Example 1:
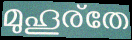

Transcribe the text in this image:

മുഹൂര്തേ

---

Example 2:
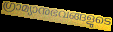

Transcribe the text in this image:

ഗ്രാമ്യാനുഭവങ്ങളുടെ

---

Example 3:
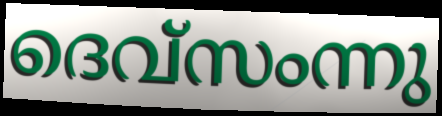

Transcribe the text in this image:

ദെവ്സംന്നു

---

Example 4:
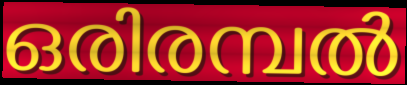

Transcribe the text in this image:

ഒരിരമ്പൽ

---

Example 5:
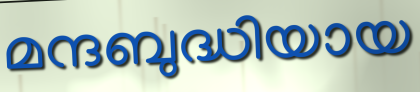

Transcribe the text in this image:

മന്ദബുദ്ധിയായ